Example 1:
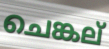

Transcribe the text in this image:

ചെങ്കല്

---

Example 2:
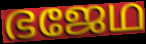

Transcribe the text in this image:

ഭജേഥ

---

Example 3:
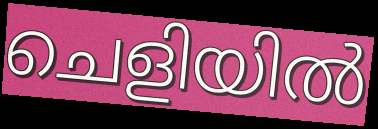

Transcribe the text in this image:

ചെളിയിൽ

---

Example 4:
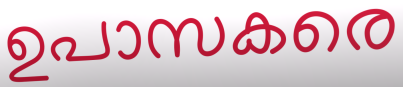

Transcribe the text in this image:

ഉപാസകരെ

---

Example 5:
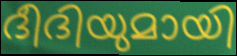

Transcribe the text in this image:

ദീദിയുമായി